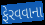
ફેરવવાના